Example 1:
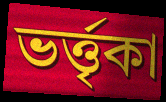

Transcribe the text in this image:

ভর্ত্তৃকা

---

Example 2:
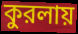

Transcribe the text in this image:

কুরলায়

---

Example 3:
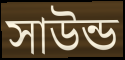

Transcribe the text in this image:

সাউন্ড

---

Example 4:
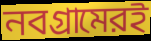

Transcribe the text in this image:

নবগ্রামেরই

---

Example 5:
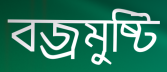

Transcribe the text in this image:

বজ্রমুষ্টি